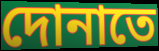
দোনাতে